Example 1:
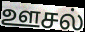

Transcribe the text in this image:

ஊசல்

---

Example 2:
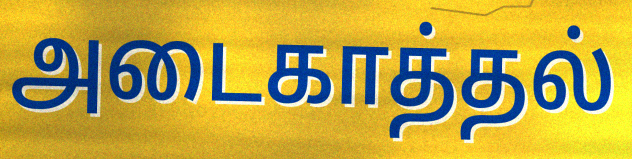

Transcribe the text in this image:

அடைகாத்தல்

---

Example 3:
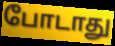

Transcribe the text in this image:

போடாது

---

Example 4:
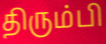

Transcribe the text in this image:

திரும்பி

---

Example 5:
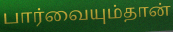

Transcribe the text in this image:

பார்வையும்தான்